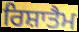
ਰਿਸ਼ਾਤੈਮ